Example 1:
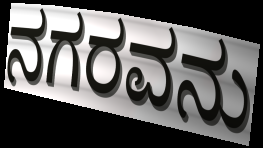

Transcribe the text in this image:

ನಗರವನು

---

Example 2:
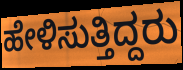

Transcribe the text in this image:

ಹೇಳಿಸುತ್ತಿದ್ದರು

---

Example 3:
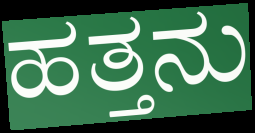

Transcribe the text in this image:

ಹತ್ತನು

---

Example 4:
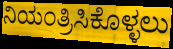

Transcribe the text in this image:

ನಿಯಂತ್ರಿಸಿಕೊಳ್ಳಲು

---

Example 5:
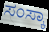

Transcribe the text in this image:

ಸಂಸ್ಕಾ